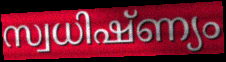
സ്വധിഷ്ണ്യം